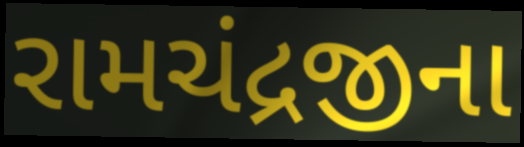
રામચંદ્રજીના